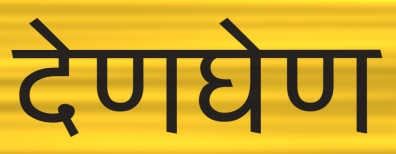
देणघेण